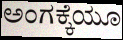
ಅಂಗಕ್ಕೆಯೂ